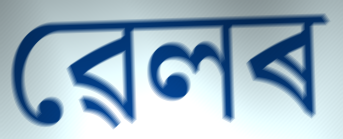
ৱেলৰ